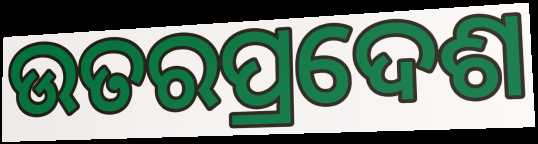
ଉତରପ୍ରଦେଶ